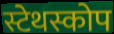
स्टेथस्कोप